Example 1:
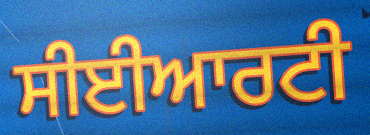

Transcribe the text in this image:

ਸੀਈਆਰਟੀ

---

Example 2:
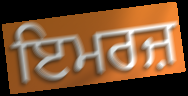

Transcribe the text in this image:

ਇਮਰਜ਼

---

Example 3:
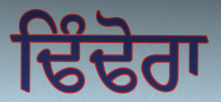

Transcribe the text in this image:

ਢਿੰਢੋਰਾ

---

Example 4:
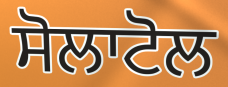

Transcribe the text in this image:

ਸੋਲਾਟੋਲ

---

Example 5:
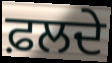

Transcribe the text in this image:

ਫ਼ਲਦੇ